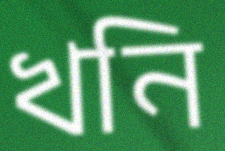
খনি